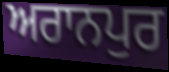
ਅਰਾਨਪੁਰ